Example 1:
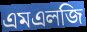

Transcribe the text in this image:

এমএলজি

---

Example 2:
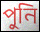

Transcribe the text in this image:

পুনি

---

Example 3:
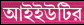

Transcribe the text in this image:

আইইউটির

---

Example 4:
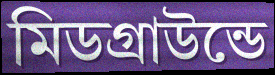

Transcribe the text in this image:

মিডগ্রাউন্ডে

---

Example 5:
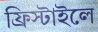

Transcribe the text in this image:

ফ্রিস্টাইলে